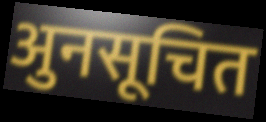
अुनसूचित